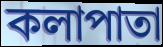
কলাপাতা